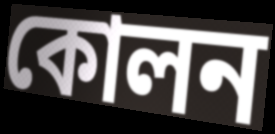
কোলন